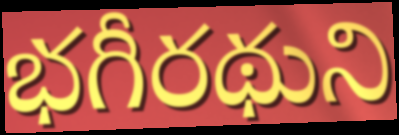
భగీరథుని